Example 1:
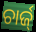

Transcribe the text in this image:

ଚାର୍ଜ୍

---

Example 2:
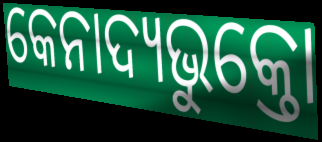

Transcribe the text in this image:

କେନାଦ୍ୟଭୁକ୍ତୋ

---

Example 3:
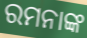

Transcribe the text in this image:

ରମନାଙ୍କ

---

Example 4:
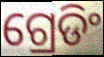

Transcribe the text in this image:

ଗ୍ରେଡିଂ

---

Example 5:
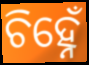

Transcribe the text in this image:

ଚିହ୍ନେଁ